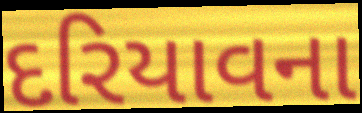
દરિયાવના